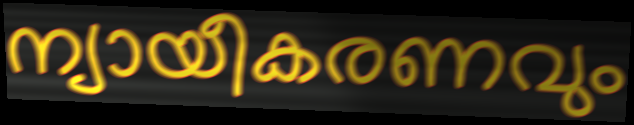
ന്യായീകരണവും